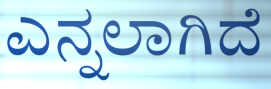
ಎನ್ನಲಾಗಿದೆ